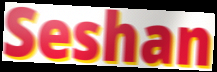
Seshan